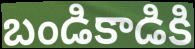
బండికాడికి